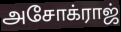
அசோக்ராஜ்